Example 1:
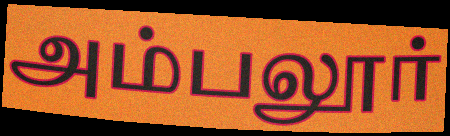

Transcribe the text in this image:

அம்பலூர்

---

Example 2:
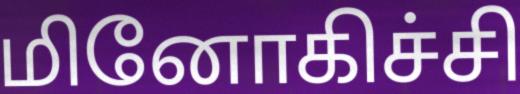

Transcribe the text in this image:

மினோகிச்சி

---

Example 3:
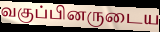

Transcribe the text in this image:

வகுப்பினருடைய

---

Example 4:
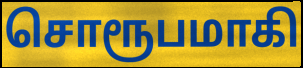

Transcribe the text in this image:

சொரூபமாகி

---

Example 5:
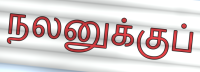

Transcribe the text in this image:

நலனுக்குப்